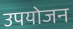
उपयोजन